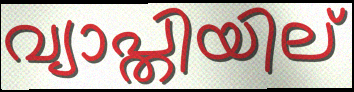
വ്യാപ്തിയില്